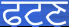
ਫਟਣ